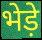
भेड़े